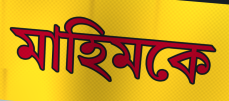
মাহিমকে